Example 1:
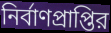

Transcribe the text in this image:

নির্বাণপ্রাপ্তির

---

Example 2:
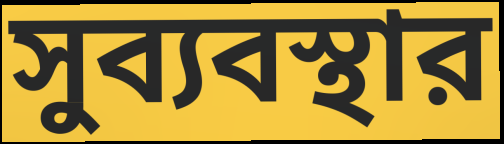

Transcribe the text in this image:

সুব্যবস্থার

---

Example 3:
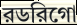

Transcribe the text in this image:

রডরিগো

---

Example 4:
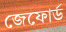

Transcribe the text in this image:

জেফোর্ড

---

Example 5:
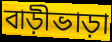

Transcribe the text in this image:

বাড়ীভাড়া